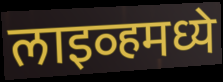
लाइव्हमध्ये